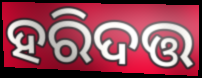
ହରିଦତ୍ତ